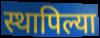
स्थापिल्या